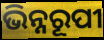
ଭିନ୍ନରୂପୀ